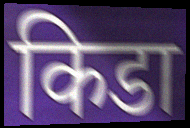
किडा